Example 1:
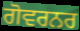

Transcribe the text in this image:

ਗੋਵਰਨਰ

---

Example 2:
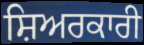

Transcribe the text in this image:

ਸ਼ਿਅਰਕਾਰੀ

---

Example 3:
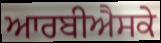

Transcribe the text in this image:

ਆਰਬੀਐਸਕੇ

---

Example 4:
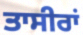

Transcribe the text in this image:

ਤਾਸੀਰਾਂ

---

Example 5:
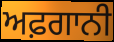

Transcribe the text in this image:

ਅਫ਼ਗਾਨੀ